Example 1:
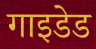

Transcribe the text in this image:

गाइडेड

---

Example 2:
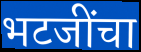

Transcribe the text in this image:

भटजींचा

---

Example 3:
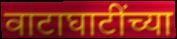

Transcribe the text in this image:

वाटाघाटींच्या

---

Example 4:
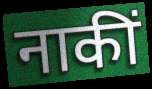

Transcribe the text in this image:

नाकीं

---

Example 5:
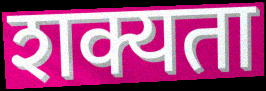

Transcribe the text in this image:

शक्यता